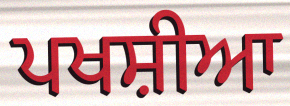
ਪਖਸ਼ੀਆ